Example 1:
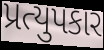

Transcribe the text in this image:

પ્રત્યુપકાર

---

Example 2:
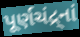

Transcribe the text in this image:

પૂર્ણચંદ્ર્નાં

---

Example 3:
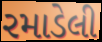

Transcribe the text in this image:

રમાડેલી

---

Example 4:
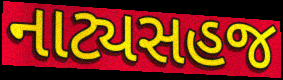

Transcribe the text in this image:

નાટ્યસહજ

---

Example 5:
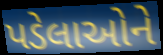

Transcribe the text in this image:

પડેલાઓને